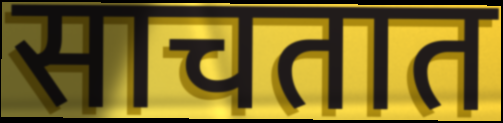
साचतात